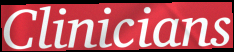
Clinicians